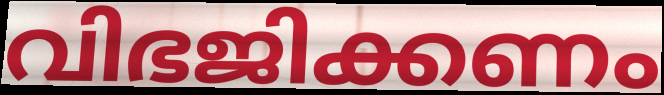
വിഭജിക്കണം